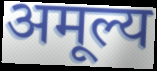
अमूल्य